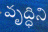
వృద్ధిని